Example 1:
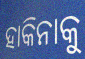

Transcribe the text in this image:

ହାକିନାକୁ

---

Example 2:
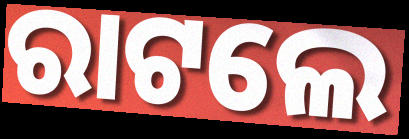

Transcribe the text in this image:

ରାଟଲେ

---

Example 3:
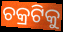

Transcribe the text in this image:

ଚକ୍ରଟିକୁ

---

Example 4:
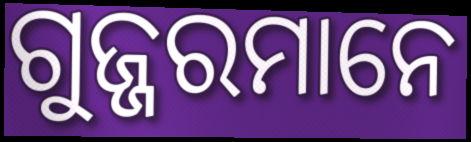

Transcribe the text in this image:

ଗୁଜ୍ଜରମାନେ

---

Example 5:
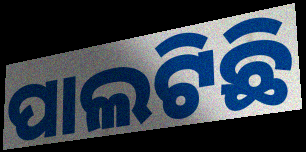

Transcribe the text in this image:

ପାଲଟିଛି